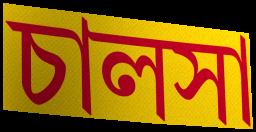
চালসা